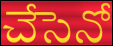
చేసెనో